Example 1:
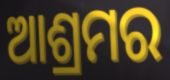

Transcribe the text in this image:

ଆଶ୍ରମର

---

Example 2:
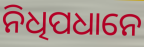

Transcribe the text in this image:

ନିଧିପଧାନେ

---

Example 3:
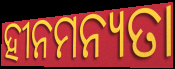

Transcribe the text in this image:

ହୀନମନ୍ୟତା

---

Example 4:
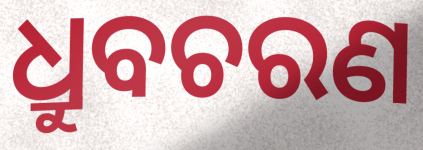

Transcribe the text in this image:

ଧ୍ରୁବଚରଣ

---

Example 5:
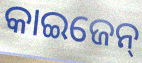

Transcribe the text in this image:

କାଇଜେନ୍